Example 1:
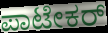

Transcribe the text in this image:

ಪಾಟೇಕರ್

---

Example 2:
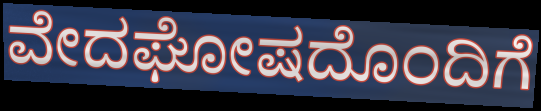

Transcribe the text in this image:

ವೇದಘೋಷದೊಂದಿಗೆ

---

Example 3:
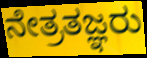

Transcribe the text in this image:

ನೇತ್ರತಜ್ಞರು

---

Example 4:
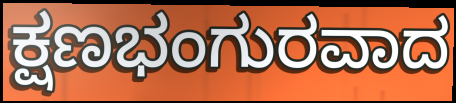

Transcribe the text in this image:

ಕ್ಷಣಭಂಗುರವಾದ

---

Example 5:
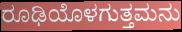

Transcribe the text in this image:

ರೂಢಿಯೊಳಗುತ್ತಮನು